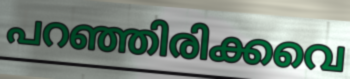
പറഞ്ഞിരിക്കവെ